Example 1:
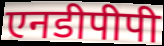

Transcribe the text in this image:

एनडीपीपी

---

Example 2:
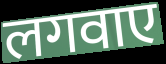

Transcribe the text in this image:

लगवाए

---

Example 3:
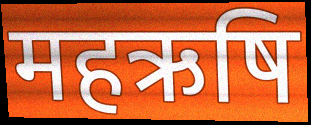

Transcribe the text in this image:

महऋषि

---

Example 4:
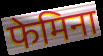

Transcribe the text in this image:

फेमिना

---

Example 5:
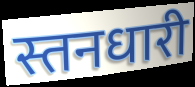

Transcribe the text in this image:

स्‍तनधारी